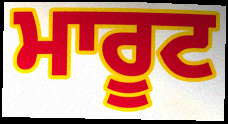
ਮਾਰੂਟ